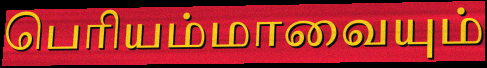
பெரியம்மாவையும்